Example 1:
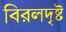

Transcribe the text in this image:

বিরলদৃষ্ট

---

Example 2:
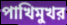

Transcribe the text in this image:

পাখিমুখর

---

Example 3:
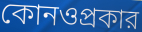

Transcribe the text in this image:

কোনওপ্রকার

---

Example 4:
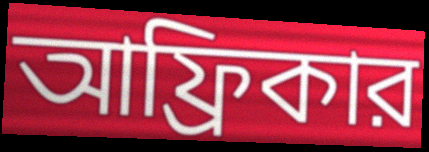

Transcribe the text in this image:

আফ্রিকার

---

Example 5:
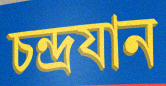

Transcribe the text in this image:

চন্দ্রযান